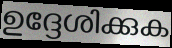
ഉദ്ദേശിക്കുക